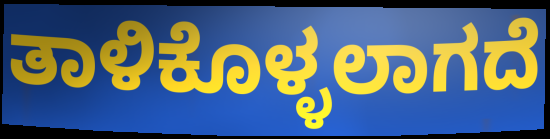
ತಾಳಿಕೊಳ್ಳಲಾಗದೆ